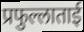
प्रफुल्लाताई